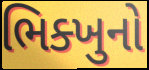
ભિક્ખુનો